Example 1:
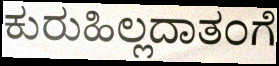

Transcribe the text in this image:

ಕುರುಹಿಲ್ಲದಾತಂಗೆ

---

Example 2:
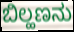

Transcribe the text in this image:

ಬಿಲ್ಹಣನು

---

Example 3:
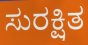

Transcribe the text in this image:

ಸುರಕ್ಷಿತ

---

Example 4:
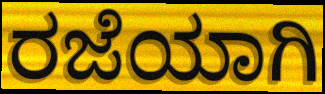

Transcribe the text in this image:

ರಜೆಯಾಗಿ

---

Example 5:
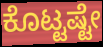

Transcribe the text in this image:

ಕೊಟ್ಟಷ್ಟೇ